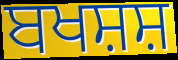
ਬਖਸ਼ਸ਼